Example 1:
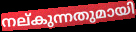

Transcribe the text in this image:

നല്കുന്നതുമായി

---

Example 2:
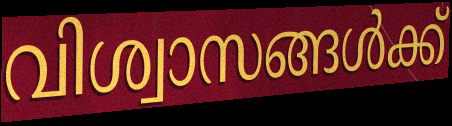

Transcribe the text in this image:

വിശ്വാസങ്ങൾക്ക്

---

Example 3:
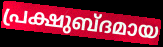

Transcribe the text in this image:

പ്രക്ഷുബ്ദമായ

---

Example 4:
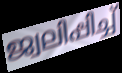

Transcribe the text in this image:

ജ്വലിപ്പിച്ച്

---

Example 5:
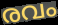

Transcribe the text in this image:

രവം